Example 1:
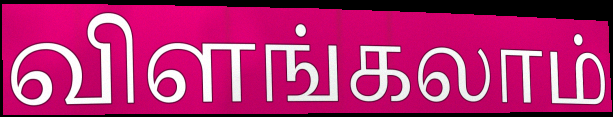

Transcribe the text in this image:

விளங்கலாம்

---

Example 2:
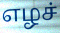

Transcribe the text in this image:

எழச்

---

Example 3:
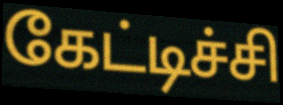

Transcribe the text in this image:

கேட்டிச்சி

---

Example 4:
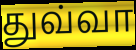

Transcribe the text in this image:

துவ்வா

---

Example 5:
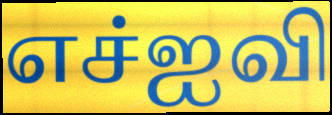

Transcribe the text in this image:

எச்ஐவி